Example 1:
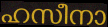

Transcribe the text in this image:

ഹസീനാ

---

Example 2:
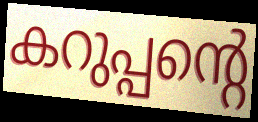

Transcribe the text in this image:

കറുപ്പന്റെ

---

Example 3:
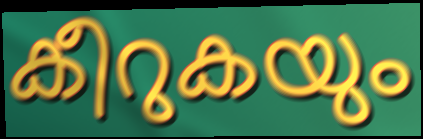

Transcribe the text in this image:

കീറുകയും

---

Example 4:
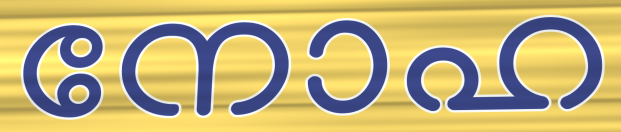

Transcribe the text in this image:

നോഹ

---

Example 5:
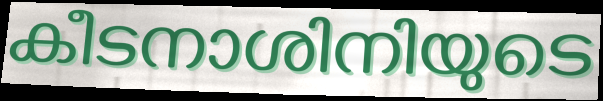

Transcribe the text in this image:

കീടനാശിനിയുടെ